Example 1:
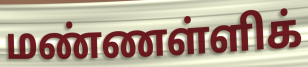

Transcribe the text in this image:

மண்ணள்ளிக்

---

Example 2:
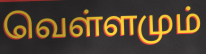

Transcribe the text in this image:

வெள்ளமும்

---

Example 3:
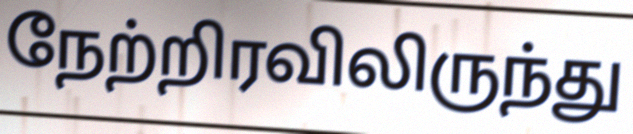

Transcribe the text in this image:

நேற்றிரவிலிருந்து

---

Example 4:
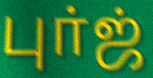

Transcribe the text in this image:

புர்ஜ்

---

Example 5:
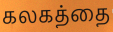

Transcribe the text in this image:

கலகத்தை